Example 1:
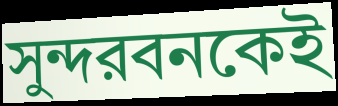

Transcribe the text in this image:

সুন্দরবনকেই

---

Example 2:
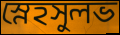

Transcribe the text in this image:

স্নেহসুলভ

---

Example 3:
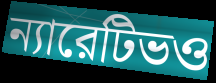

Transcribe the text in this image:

ন্যারেটিভও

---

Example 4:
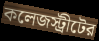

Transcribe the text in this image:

কলেজস্ট্রীটের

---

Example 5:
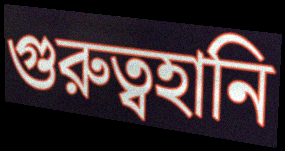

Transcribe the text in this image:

গুরুত্বহানি